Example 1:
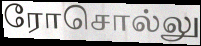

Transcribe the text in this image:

ரோசொல்லு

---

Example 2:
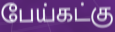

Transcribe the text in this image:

பேய்கட்கு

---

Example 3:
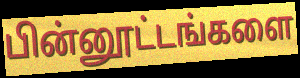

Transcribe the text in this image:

பின்னூட்டங்களை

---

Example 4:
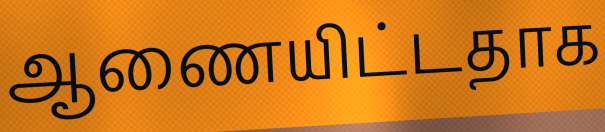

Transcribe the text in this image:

ஆணையிட்டதாக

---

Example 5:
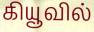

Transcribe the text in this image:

கியூவில்